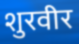
शुरवीर